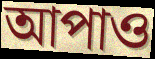
আপাও